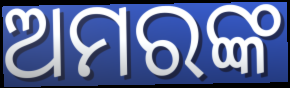
ଅମରଙ୍କ